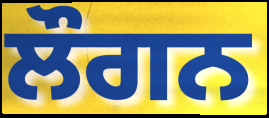
ਲੌਗਨ